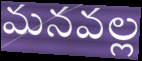
మనవల్ల